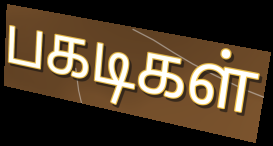
பகடிகள்